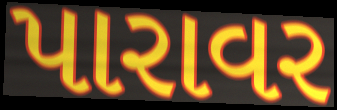
પારાવર